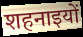
शहनाइयों